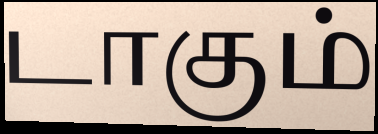
டாகும்